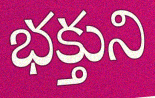
భక్తుని